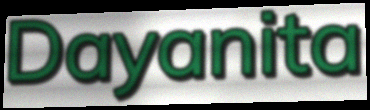
Dayanita